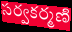
సర్వకర్మణి